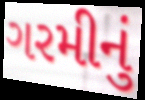
ગરમીનું